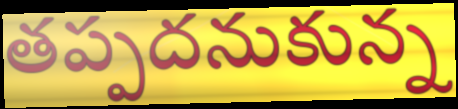
తప్పదనుకున్న